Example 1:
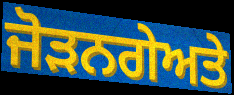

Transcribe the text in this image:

ਜੋੜਨਗੇਅਤੇ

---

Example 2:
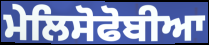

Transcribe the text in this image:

ਮੇਲਿਸੋਫੋਬੀਆ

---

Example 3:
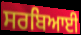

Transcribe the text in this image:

ਸਰਬਿਆਈ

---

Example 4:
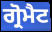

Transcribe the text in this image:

ਗ੍ਰੋਮੈਟ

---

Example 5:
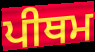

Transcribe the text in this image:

ਪੀਥਮ